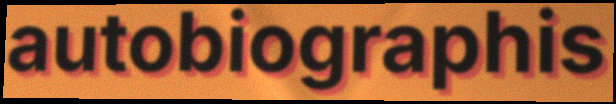
autobiographis